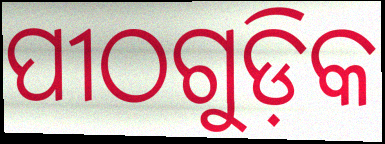
ପୀଠଗୁଡ଼ିକ